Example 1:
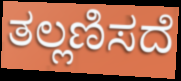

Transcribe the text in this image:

ತಲ್ಲಣಿಸದೆ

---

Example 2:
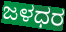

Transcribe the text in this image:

ಜಳಧರ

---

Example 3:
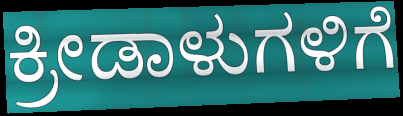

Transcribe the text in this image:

ಕ್ರೀಡಾಳುಗಳಿಗೆ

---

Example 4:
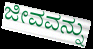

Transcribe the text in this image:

ಜೀವವನ್ನು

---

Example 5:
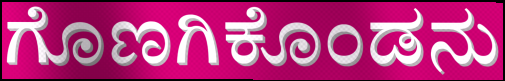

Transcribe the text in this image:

ಗೊಣಗಿಕೊಂಡನು